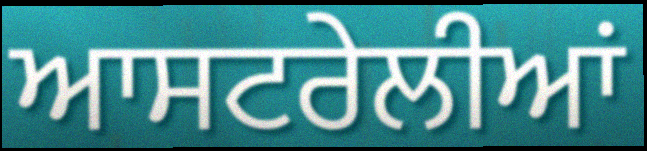
ਆਸਟਰੇਲੀਆਂ